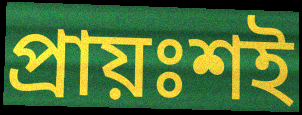
প্রায়ঃশই